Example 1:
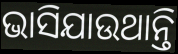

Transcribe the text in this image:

ଭାସିଯାଉଥାନ୍ତି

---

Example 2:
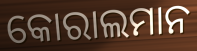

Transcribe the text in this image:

କୋରାଲମାନ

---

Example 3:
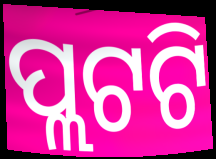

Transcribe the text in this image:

ପ୍ଲଟଟି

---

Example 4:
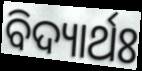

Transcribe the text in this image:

ବିଦ୍ୟାର୍ଥଃ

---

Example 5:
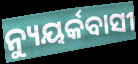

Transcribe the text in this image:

ନ୍ୟୁୟର୍କବାସୀ